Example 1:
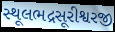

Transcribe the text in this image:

સ્થૂલભદ્રસૂરીશ્વરજી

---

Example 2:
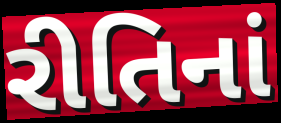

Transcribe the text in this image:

રીતિનાં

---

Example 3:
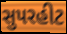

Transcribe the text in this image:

સુપરહીટ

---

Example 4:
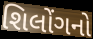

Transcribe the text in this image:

શિલોંગનો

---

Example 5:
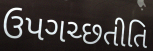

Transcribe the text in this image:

ઉપગચ્છતીતિ